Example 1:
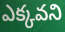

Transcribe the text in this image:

ఎక్కవని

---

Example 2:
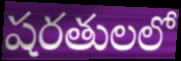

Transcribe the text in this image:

షరతులలో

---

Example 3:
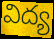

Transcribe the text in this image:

విద్య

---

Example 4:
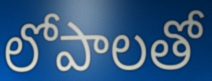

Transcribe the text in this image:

లోపాలతో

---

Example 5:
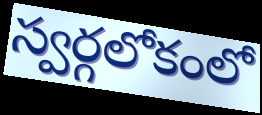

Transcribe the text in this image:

స్వర్గలోకంలో